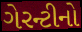
ગેરન્ટીનો